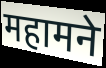
महामने